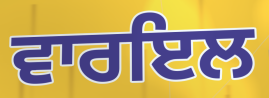
ਵਾਰਇਲ